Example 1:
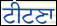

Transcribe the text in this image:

ਟੀਟਣਾ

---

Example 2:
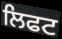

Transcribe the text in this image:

ਲਿਫਟ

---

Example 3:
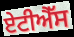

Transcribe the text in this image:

ਏਟੀਐੱਸ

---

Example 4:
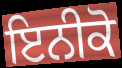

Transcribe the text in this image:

ਇਨੀਕੋ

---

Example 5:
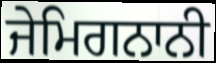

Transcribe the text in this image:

ਜੇਮਿਗਨਾਨੀ